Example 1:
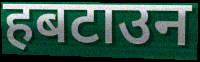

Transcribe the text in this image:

हबटाउन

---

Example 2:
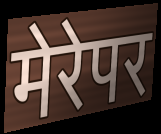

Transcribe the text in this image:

मेरेपर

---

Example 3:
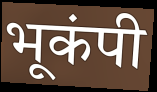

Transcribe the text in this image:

भूकंपी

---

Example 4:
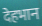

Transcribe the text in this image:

देहभान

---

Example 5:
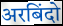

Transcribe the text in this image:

अरबिंदो